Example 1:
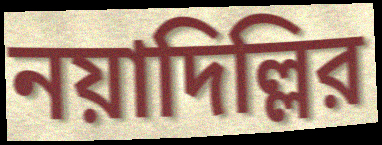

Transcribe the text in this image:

নয়াদিল্লির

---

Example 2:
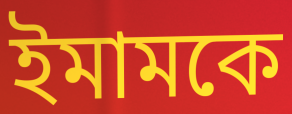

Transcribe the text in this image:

ইমামকে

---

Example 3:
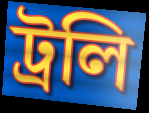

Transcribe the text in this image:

ট্রলি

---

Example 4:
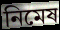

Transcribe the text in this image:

নিমেষ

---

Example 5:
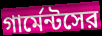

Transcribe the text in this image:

গার্মেন্টসের